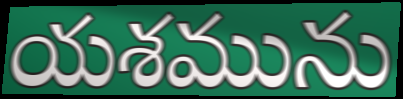
యశమును